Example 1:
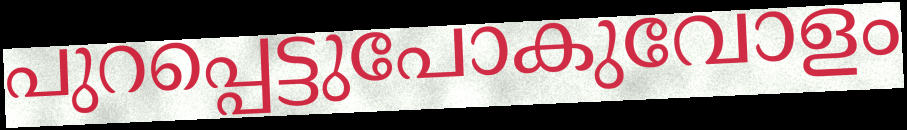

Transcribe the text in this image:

പുറപ്പെട്ടുപോകുവോളം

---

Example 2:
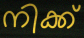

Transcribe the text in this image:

നിക്ക്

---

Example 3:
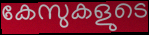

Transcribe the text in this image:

കേസുകളുടെ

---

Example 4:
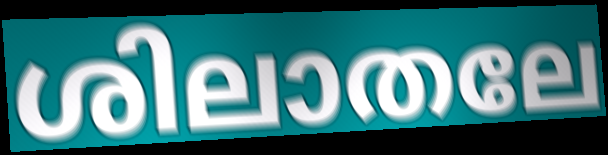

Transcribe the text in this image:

ശിലാതലേ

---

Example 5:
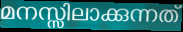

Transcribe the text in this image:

മനസ്സിലാക്കുന്നത്